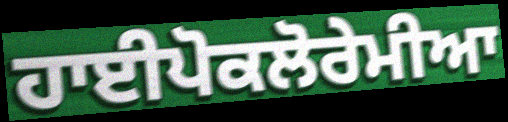
ਹਾਈਪੋਕਲੋਰੇਮੀਆ